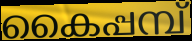
കൈപ്പമ്പ്